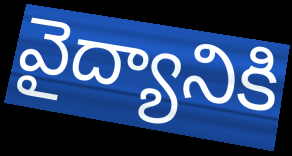
వైద్యానికి